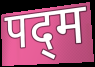
पद्‌म